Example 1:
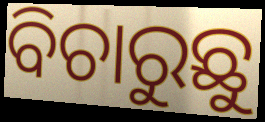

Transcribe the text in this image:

ବିଚାରୁଛୁ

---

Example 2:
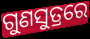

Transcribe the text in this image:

ଗୁଣସୁତ୍ରରେ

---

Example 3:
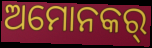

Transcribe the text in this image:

ଅମୋନକର୍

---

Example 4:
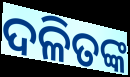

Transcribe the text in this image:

ଦଳିତଙ୍କ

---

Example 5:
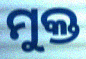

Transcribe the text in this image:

ମୁକ୍ତ